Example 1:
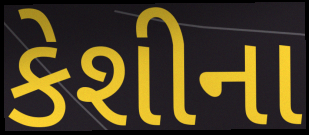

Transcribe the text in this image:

કેશીના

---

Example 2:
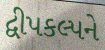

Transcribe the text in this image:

દ્વીપકલ્પને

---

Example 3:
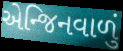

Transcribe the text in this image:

એન્જિનવાળું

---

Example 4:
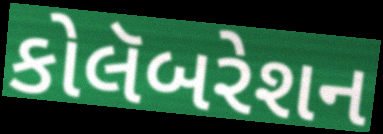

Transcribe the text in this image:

કોલૅબરેશન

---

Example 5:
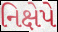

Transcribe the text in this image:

નિક્ષેપે